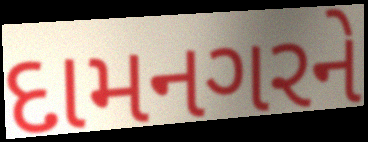
દામનગરને